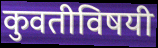
कुवतीविषयी